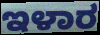
ಇಳಾರ